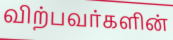
விற்பவர்களின்